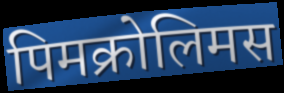
पिमक्रोलिमस